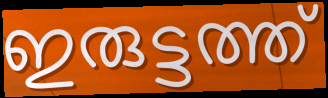
ഇരുട്ടത്ത്